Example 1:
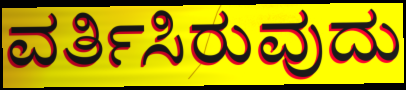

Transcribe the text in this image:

ವರ್ತಿಸಿರುವುದು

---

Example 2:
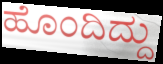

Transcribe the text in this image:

ಹೊಂದಿದ್ದು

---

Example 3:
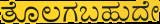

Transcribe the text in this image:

ತೊಲಗಬಹುದೇ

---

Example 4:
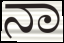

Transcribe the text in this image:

ನಾ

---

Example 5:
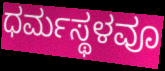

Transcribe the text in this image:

ಧರ್ಮಸ್ಥಳವೂ